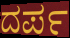
ದರ್ಪ